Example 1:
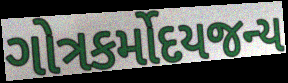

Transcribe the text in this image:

ગોત્રકર્મોદયજન્ય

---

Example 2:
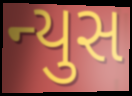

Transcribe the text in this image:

ન્યુસ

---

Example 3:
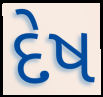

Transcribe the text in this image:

દેષ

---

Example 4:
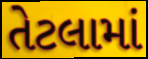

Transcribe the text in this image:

તેટલામાં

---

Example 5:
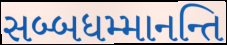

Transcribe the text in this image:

સબ્બધમ્માનન્તિ